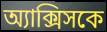
অ্যাক্সিসকে